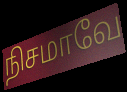
நிசமாவே